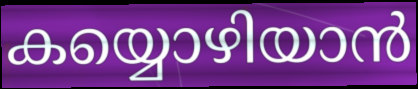
കയ്യൊഴിയാൻ